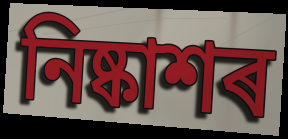
নিষ্কাশৰ